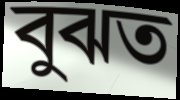
বুঝত